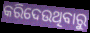
କରିଦେଉଥିବାରୁ